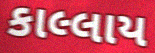
કાલ્લાય